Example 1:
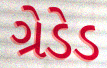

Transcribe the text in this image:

ગ્રેડેડ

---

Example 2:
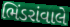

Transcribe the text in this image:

ભિંડરાંવાલે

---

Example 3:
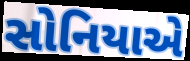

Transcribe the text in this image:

સોનિયાએ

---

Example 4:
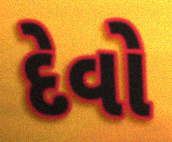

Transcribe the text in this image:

દેવો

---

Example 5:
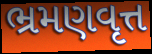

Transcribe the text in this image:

ભ્રમણવૃત્ત